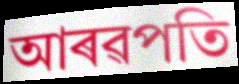
আৰৱপতি